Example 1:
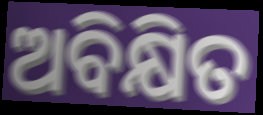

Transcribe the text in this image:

ଅବିକ୍ଷିତ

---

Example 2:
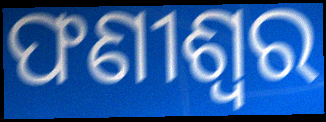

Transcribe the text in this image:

ଫଣୀଶ୍ୱର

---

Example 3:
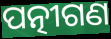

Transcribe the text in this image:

ପତ୍ନୀଗଣ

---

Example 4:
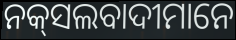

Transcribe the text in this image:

ନକ୍‌ସଲବାଦୀମାନେ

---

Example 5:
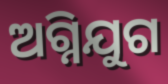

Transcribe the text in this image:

ଅଗ୍ନିଯୁଗ